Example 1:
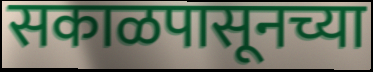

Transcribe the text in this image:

सकाळपासूनच्या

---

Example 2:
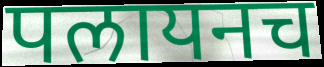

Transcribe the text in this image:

पलायनच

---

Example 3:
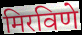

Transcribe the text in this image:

मिरविणे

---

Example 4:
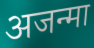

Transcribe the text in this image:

अजन्मा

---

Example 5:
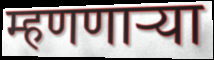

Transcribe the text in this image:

म्हणणाऱ्या